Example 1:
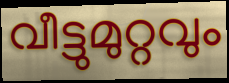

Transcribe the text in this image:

വീട്ടുമുറ്റവും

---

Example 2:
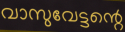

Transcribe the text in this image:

വാസുവേട്ടന്റെ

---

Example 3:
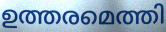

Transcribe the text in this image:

ഉത്തരമെത്തി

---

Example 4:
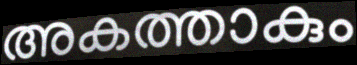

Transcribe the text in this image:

അകത്താകും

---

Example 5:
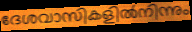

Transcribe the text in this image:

ദേശവാസികളിൽനിന്നും